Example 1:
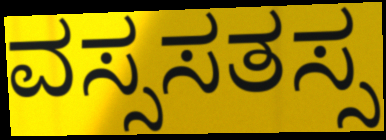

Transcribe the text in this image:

ವಸ್ಸಸತಸ್ಸ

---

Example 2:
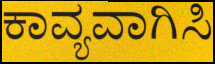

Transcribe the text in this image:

ಕಾವ್ಯವಾಗಿಸಿ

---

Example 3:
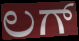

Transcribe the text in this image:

ಲಗ್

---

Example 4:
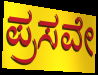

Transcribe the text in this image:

ಪ್ರಸವೇ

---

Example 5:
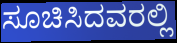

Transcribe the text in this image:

ಸೂಚಿಸಿದವರಲ್ಲಿ